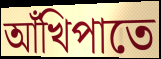
আঁখিপাতে